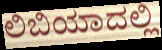
ಲಿಬಿಯಾದಲ್ಲಿ